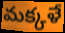
మక్కళే